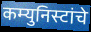
कम्युनिस्टांचे